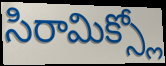
సిరామిక్స్లో